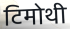
टिमोथी